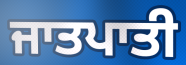
ਜਾਤਪਾਤੀ